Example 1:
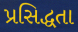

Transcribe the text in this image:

પ્રસિદ્ધતા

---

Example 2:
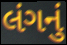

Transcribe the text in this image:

લંગનું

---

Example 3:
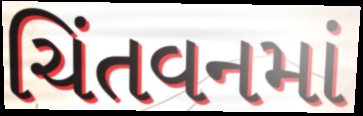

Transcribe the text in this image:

ચિંતવનમાં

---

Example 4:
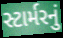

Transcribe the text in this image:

સ્ટાર્મરનું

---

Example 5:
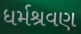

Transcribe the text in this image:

ધર્મશ્રવણ